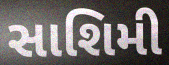
સાશિમી